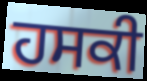
ਹਸਕੀ